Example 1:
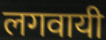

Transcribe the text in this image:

लगवायी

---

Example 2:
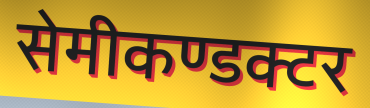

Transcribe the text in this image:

सेमीकण्डक्टर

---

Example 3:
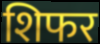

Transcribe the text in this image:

शिफर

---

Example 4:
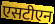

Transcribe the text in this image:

एसटीएन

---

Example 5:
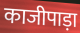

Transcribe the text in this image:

काजीपाड़ा